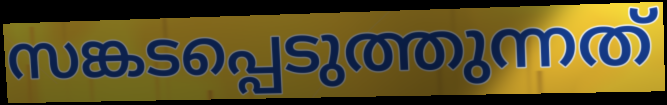
സങ്കടപ്പെടുത്തുന്നത്